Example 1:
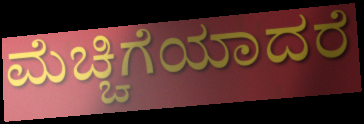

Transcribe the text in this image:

ಮೆಚ್ಚಿಗೆಯಾದರೆ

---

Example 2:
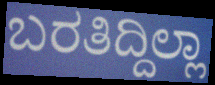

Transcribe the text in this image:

ಬರತಿದ್ದಿಲ್ಲಾ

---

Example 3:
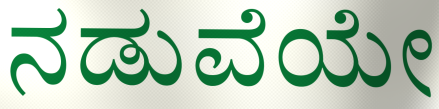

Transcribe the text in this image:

ನಡುವೆಯೇ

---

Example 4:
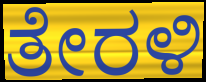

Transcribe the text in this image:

ತೇರಳಿ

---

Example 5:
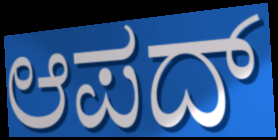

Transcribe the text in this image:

ಆಪದ್